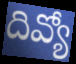
దివ్యో